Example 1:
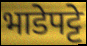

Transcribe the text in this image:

भाडेपट्टे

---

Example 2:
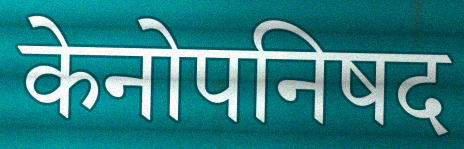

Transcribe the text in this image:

केनोपनिषद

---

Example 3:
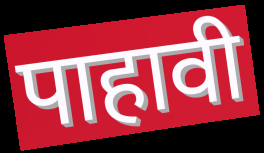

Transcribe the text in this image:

पाहावी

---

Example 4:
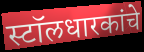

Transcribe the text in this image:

स्टॉलधारकांचे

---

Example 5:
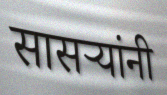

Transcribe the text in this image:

सासर्‍यांनी